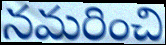
నమరించి